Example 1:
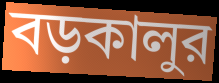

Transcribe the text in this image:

বড়কালুর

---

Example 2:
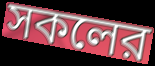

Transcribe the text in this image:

সকলের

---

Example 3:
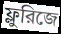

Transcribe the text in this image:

ফ্লুরিজে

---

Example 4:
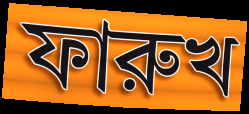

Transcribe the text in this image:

ফারুখ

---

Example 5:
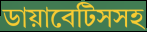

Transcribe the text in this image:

ডায়াবেটিসসহ